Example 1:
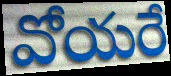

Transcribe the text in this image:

వోయరే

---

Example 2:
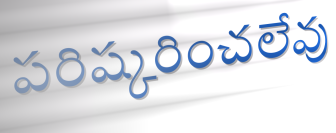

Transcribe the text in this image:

పరిష్కరించలేవు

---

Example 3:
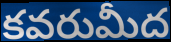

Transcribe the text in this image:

కవరుమీద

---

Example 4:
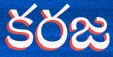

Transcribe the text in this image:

కరజ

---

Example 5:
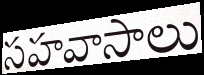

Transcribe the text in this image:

సహవాసాలు